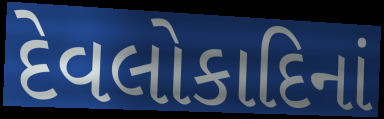
દેવલોકાદિનાં